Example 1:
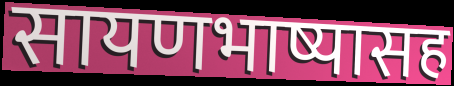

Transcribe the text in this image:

सायणभाष्यासह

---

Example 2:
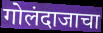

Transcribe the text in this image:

गोलंदाजाचा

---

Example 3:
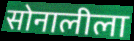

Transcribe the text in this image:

सोनालीला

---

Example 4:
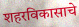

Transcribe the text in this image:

शहरविकासाचे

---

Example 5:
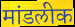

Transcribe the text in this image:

मांडलीक